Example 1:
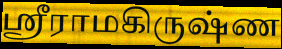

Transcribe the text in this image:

ஸ்ரீராமகிருஷ்ண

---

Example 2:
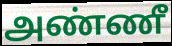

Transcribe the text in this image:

அண்ணீ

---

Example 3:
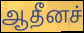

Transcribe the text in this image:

ஆதீனச்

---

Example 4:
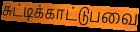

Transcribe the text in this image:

சுட்டிக்காட்டுபவை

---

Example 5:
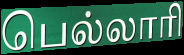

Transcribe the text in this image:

பெல்லாரி